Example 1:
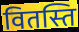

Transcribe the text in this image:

वितस्ति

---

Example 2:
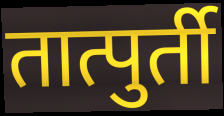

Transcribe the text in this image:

तात्पुर्ती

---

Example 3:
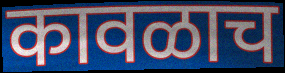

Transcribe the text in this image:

कावळाच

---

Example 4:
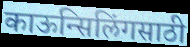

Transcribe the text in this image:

काऊन्सिलिंगसाठी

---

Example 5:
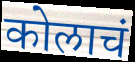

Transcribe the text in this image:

कोलाचं